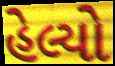
હેલ્યો